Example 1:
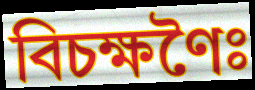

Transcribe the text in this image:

বিচক্ষণৈঃ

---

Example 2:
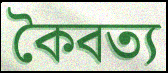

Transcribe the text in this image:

কৈবত্য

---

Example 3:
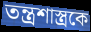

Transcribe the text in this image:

তন্ত্রশাস্ত্রকে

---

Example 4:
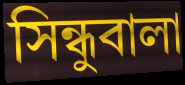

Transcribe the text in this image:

সিন্ধুবালা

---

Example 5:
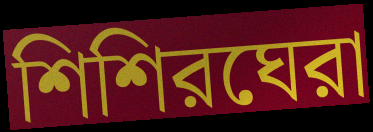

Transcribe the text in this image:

শিশিরঘেরা